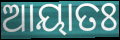
ଆୟାତଃ